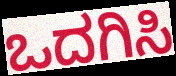
ಒದಗಿಸಿ